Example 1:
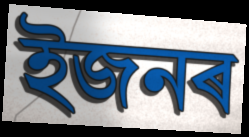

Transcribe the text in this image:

ইজনৰ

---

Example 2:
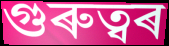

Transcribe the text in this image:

গুৰুত্বৰ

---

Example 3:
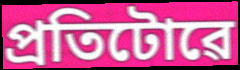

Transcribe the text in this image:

প্ৰতিটোৱে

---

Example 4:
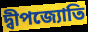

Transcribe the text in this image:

দ্বীপজ্যোতি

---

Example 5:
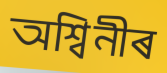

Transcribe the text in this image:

অশ্বিনীৰ